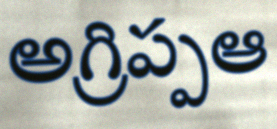
అగ్రిప్పఆ